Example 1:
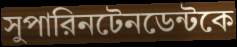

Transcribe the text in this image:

সুপারিনটেনডেন্টকে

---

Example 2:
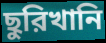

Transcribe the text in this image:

ছুরিখানি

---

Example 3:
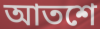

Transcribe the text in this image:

আতশে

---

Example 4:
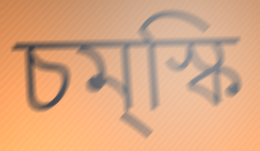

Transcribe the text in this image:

চম্‌স্কি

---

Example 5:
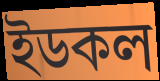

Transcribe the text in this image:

ইডকল